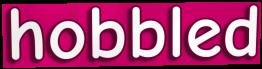
hobbled